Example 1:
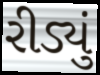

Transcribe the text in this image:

રીડ્યું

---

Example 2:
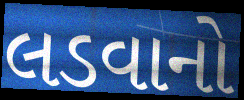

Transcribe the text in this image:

લડવાનો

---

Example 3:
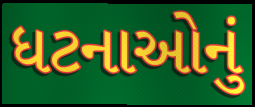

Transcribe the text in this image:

ધટનાઓનું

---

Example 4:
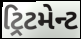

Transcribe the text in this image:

ટ્રિટમેન્ટ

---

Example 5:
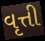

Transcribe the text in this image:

વૃત્તી